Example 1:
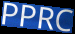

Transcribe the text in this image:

PPRC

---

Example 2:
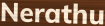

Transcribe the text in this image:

Nerathu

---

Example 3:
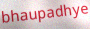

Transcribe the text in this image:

bhaupadhye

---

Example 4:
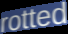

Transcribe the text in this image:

rotted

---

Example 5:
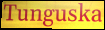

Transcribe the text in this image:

Tunguska